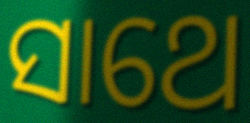
ସାଥେ